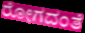
ರೋಗದಂತೆ